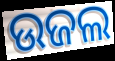
ଉଜଲ